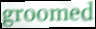
groomed